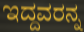
ಇದ್ದವರನ್ನ